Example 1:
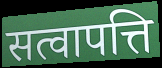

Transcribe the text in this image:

सत्वापत्ति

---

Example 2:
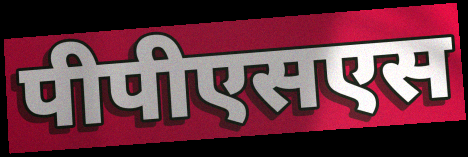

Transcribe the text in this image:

पीपीएसएस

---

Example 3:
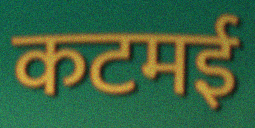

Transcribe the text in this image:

कटमई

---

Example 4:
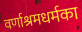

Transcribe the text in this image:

वर्णाश्रमधर्मका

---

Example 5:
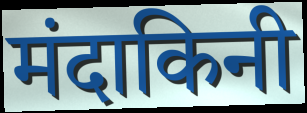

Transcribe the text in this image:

मंदाकिनी